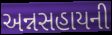
અન્નસહાયની